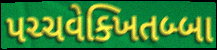
પચ્ચવેક્ખિતબ્બા